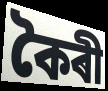
কৈৰী